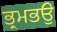
ਭ੍ਰਮਭਉ